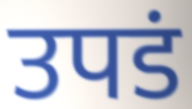
उपडं